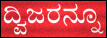
ದ್ವಿಜರನ್ನೂ